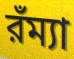
রঁম্যা